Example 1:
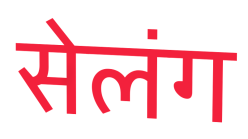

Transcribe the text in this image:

सेलंग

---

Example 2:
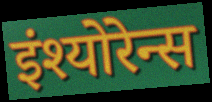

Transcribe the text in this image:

इंश्योरेन्स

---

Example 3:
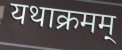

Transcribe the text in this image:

यथाक्रमम्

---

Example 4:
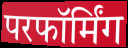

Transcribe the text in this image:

परफॉर्मिंग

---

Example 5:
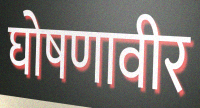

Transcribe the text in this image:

घोषणावीर